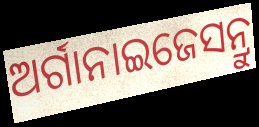
ଅର୍ଗାନାଇଜେସନ୍ରୁ